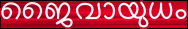
ജൈവായുധം